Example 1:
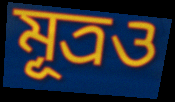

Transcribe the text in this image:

মূত্রও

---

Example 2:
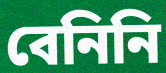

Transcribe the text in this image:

বেনিনি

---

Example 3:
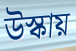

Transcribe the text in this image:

উস্কায়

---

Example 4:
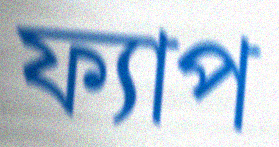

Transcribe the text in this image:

ফ্যাপ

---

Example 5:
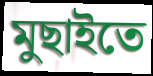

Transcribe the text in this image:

মুছাইতে